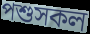
পশুসকল